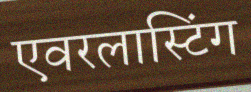
एवरलास्टिंग